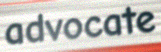
advocate